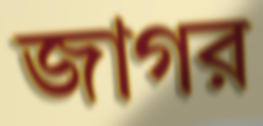
জাগর